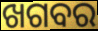
ଖଗବର